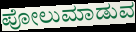
ಪೋಲುಮಾಡುವ